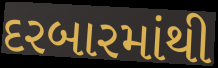
દરબારમાંથી